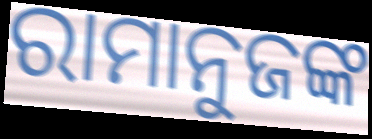
ରାମାନୁଜଙ୍କ